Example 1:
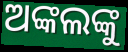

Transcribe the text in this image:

ଅଙ୍କଲଙ୍କୁ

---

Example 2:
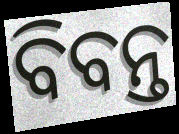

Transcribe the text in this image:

ବିବନ୍ତ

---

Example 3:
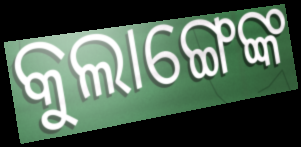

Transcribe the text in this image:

କୁଲାଙ୍ଗେଙ୍କ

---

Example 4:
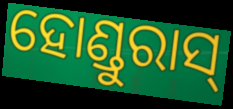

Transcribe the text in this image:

ହୋଣ୍ଡୁରାସ୍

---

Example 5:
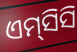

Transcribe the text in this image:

ଏମ୍‌ସିସି